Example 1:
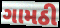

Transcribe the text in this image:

ગામઠી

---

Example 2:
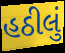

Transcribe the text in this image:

હઠીલું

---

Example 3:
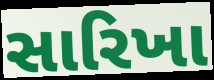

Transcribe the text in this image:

સારિખા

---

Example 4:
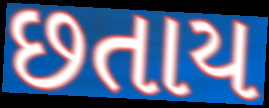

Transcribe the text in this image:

છતાય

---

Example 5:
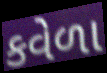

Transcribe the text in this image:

કવેળા